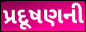
પ્રદૂષણની